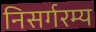
निसर्गरम्य